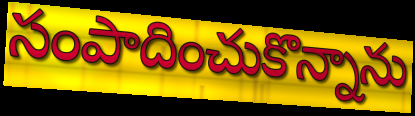
సంపాదించుకొన్నాను